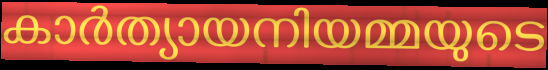
കാർത്യായനിയമ്മയുടെ